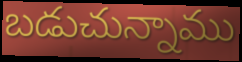
బడుచున్నాము